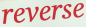
reverse